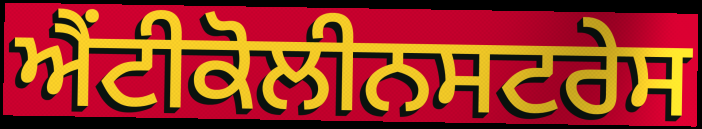
ਐਂਟੀਕੋਲੀਨਸਟਰੇਸ